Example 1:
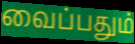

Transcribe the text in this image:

வைப்பதும்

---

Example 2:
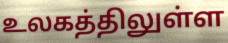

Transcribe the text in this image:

உலகத்திலுள்ள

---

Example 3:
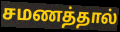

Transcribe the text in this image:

சமணத்தால்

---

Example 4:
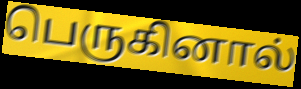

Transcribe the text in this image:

பெருகினால்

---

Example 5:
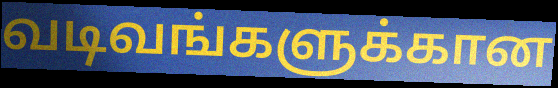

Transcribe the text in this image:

வடிவங்களுக்கான